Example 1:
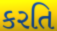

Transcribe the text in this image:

કરતિ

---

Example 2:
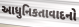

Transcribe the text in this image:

આધુનિકતાવાદનો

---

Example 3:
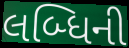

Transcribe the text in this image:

લબ્ધિની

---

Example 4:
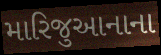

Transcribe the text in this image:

મારિજુઆનાના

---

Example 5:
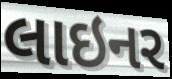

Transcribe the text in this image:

લાઇનર